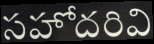
సహోదరివి